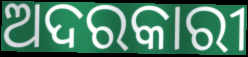
ଅଦରକାରୀ